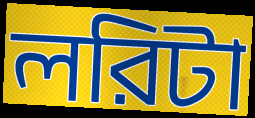
লরিটা